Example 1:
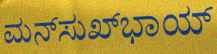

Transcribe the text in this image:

ಮನ್‌ಸುಖ್‌ಭಾಯ್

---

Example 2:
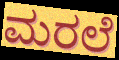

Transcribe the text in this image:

ಮರಲೆ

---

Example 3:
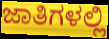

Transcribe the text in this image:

ಜಾತಿಗಳಲ್ಲಿ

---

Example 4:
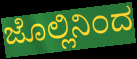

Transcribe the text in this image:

ಜೊಲ್ಲಿನಿಂದ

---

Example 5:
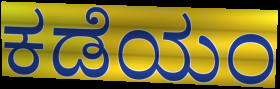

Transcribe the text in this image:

ಕಡೆಯಂ